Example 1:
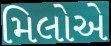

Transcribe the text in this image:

મિલોએ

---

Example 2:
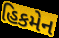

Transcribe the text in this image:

હિકમેન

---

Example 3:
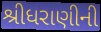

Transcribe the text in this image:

શ્રીધરાણીની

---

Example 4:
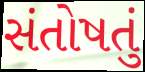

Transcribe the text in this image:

સંતોષતું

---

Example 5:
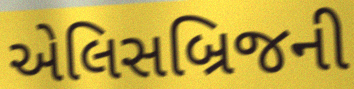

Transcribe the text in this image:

એલિસબ્રિજની